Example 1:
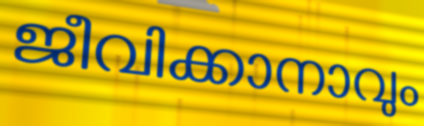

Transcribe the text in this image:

ജീവിക്കാനാവും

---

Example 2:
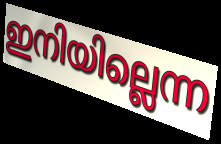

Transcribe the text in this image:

ഇനിയില്ലെന്ന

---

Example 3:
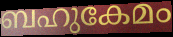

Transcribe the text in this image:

ബഹുകേമം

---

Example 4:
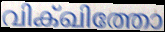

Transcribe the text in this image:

വിക്ഖിത്തോ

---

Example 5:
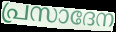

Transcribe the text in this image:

പ്രസാദേന